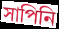
সাপিনি